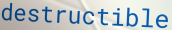
destructible